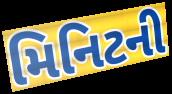
મિનિટની